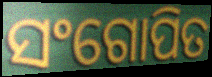
ସଂଗୋପିତ